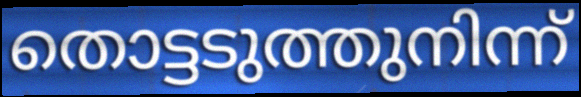
തൊട്ടടുത്തുനിന്ന്